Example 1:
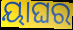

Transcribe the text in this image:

ୟାଘର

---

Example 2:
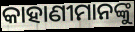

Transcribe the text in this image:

କାହାଣୀମାନଙ୍କୁ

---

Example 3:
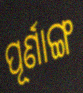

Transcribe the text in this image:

ପୂର୍ଣାଙ୍ଗ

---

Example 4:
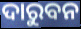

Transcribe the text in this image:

ଦାରୁବନ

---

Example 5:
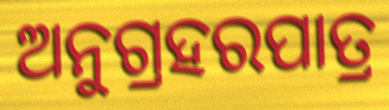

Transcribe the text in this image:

ଅନୁଗ୍ରହରପାତ୍ର